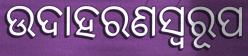
ଉଦାହରଣସ୍ୱରୂପ